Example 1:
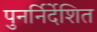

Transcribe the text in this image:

पुनर्निर्देशित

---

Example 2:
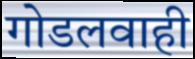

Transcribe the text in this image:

गोडलवाही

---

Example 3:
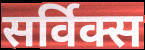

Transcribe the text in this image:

सर्विक्स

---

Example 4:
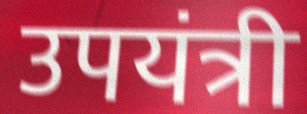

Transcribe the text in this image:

उपयंत्री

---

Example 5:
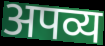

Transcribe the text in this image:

अपव्य